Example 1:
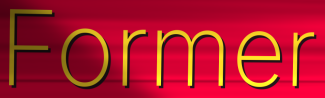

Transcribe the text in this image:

Former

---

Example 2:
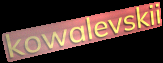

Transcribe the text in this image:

kowalevskii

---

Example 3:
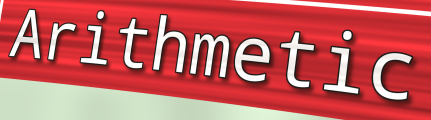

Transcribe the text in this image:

Arithmetic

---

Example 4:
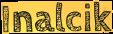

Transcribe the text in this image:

Inalcik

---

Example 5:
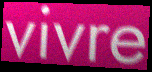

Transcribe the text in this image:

vivre